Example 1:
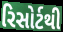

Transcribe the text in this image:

રિસોર્ટથી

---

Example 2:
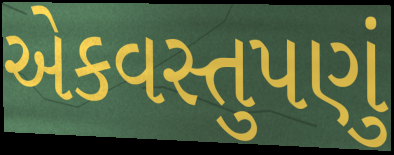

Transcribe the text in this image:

એકવસ્તુપણું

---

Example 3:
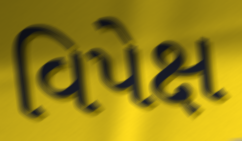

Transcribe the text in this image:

વિપેક્ષ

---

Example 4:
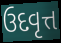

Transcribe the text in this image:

ઉદવૃત્ત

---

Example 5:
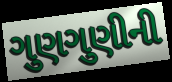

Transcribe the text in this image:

ગુણગુણીની